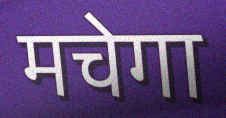
मचेगा